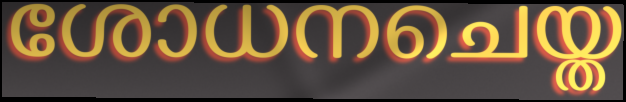
ശോധനചെയ്ത